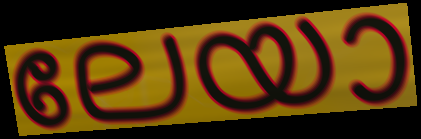
ലേയാ